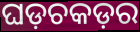
ଘଡ଼ଚକଡ଼ର